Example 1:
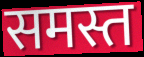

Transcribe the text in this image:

समस्त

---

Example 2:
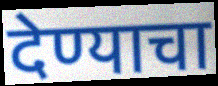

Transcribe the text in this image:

देण्याचा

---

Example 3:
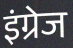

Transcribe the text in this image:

इंग्रेज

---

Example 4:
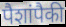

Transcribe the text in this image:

पैशांपैकी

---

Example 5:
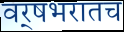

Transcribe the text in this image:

वर्षभरातच